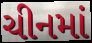
ચીનમાં